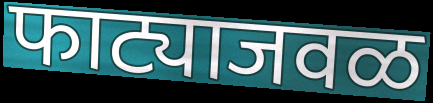
फाट्याजवळ